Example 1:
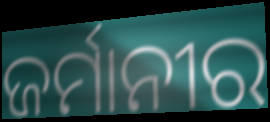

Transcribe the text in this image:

ଜର୍ମାନୀର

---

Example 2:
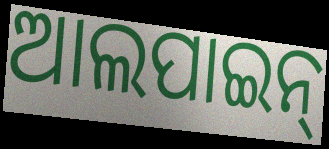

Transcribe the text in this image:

ଆଲପାଇନ୍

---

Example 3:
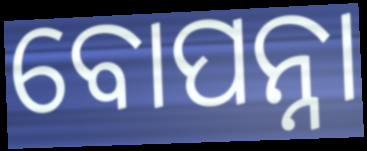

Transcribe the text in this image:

ବୋପନ୍ନା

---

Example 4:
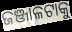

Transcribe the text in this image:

ଜଞ୍ଜାଳଟାକୁ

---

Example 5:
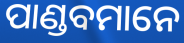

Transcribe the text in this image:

ପାଣ୍ଡବମାନେ